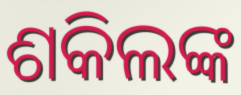
ଶକିଲଙ୍କ